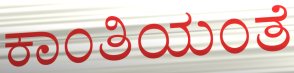
ಕಾಂತಿಯಂತೆ